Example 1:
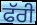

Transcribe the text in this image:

ਫੱਰੀ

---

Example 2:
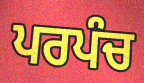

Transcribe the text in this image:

ਪਰਪੰਚ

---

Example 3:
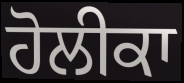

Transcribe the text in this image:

ਹੋਲੀਕਾ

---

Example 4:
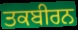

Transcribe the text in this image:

ਤਕਬੀਰਨ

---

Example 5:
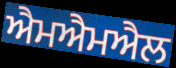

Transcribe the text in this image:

ਐਮਐਮਐਲ